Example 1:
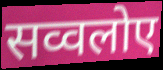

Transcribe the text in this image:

सव्वलोए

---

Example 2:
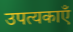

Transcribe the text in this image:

उपत्यकाएँ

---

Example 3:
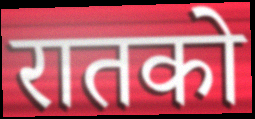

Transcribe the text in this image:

रातको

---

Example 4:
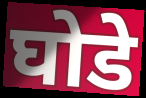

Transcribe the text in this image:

घोडे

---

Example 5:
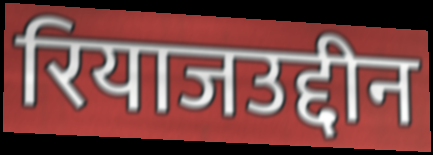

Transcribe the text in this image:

रियाजउद्दीन